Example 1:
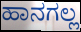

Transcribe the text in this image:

ಹಾನಗಲ್ಲ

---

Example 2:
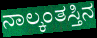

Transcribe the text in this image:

ನಾಲ್ಕಂತಸ್ತಿನ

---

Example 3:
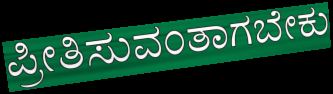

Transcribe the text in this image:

ಪ್ರೀತಿಸುವಂತಾಗಬೇಕು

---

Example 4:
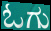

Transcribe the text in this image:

ಓಗು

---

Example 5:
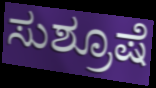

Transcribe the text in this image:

ಸುಶ್ರೂಷೆ